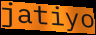
jatiyo